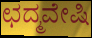
ಛದ್ಮವೇಷಿ